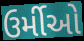
ઉર્મીઓ